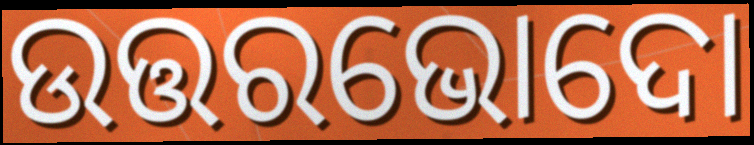
ଉତ୍ତରଭୋଦୋ